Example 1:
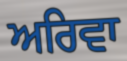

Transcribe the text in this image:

ਅਰਿਵਾ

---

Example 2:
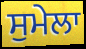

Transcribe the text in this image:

ਸੁਮੇਲਾ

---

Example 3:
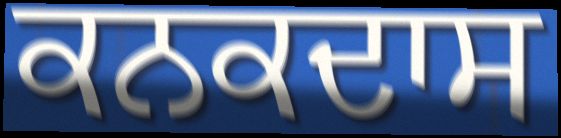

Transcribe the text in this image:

ਕਨਕਦਾਸ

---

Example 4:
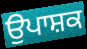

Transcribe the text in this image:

ਉਪਾਸ਼ਕ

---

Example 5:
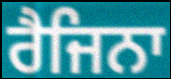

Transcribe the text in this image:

ਰੈਜਿਨਾ